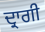
ਦ੍ਰਾਗੀ